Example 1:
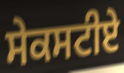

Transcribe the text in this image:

ਸੇਕਸਟੀਏ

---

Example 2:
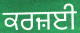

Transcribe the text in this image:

ਕਰਜ਼ਈ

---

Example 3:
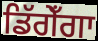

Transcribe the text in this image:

ਡਿੱਗੇਁਗਾ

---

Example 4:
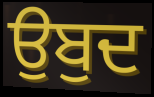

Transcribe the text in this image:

ਉਬੁਦ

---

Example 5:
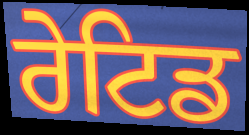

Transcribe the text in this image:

ਰੇਟਿਡ